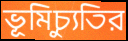
ভূমিচ্যুতির